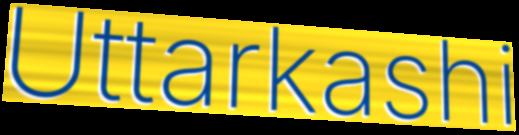
Uttarkashi